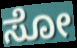
ಸೋ